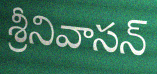
శ్రీనివాసన్